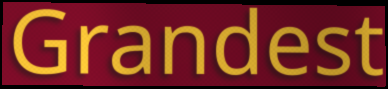
Grandest